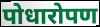
पोधारोपण